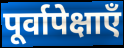
पूर्वापेक्षाएँ